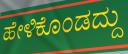
ಹೇಳಿಕೊಂಡದ್ದು